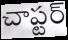
చాప్టర్